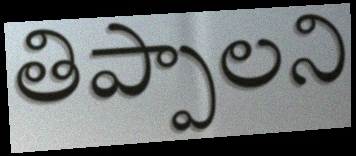
తిప్పాలని